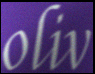
oliv